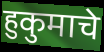
हुकुमाचे